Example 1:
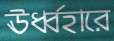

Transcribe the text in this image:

ঊর্ধ্বহারে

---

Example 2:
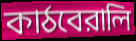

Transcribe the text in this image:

কাঠবেরালি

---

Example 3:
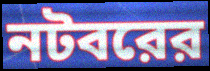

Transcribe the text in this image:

নটবরের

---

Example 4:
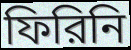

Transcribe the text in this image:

ফিরিনি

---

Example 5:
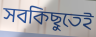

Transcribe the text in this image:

সবকিছুতেই